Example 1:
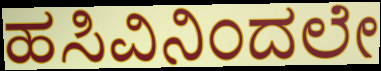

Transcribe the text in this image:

ಹಸಿವಿನಿಂದಲೇ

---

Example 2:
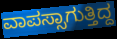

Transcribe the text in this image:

ವಾಪಸ್ಸಾಗುತ್ತಿದ್ದ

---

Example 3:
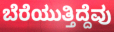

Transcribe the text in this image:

ಬೆರೆಯುತ್ತಿದ್ದೆವು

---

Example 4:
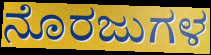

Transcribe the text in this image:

ನೊರಜುಗಳ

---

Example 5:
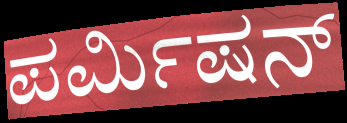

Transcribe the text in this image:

ಪರ್ಮಿಷನ್